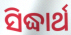
ସିଦ୍ଧାର୍ଥ